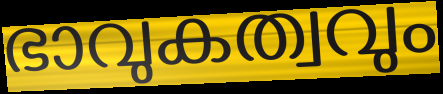
ഭാവുകത്വവും